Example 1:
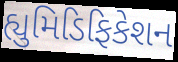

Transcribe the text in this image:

હ્યુમિડિફિકેશન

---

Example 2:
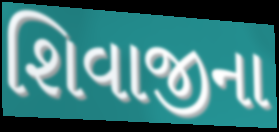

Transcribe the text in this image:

શિવાજીના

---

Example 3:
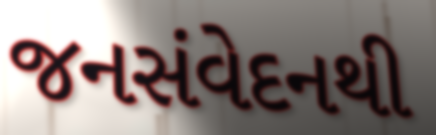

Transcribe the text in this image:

જનસંવેદનથી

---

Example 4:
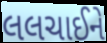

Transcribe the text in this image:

લલચાઈને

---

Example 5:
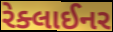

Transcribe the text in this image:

રેક્લાઈનર